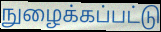
நுழைக்கப்பட்டு